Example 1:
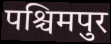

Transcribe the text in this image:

पश्चिमपुर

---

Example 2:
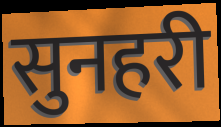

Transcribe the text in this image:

सुनहरी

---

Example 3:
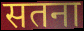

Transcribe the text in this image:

सतना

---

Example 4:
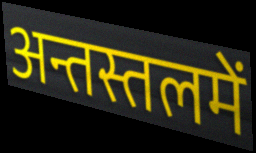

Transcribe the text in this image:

अन्तस्तलमें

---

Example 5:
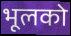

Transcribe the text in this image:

भूलको